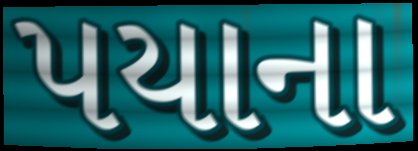
પયાના